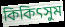
কিকিৎসুম